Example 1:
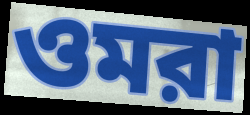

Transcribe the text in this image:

ওমরা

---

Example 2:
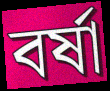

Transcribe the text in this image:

বর্ষা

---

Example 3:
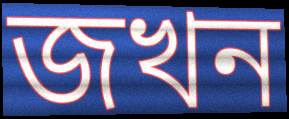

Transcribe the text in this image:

জখন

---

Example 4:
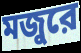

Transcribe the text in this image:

মজুরে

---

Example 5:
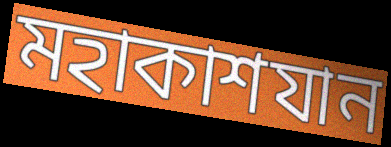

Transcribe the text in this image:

মহাকাশযান